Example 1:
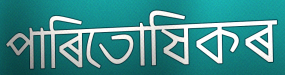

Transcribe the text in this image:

পাৰিতোষিকৰ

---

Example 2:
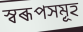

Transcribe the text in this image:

স্বৰূপসমূহ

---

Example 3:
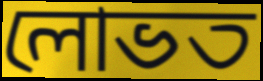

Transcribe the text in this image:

লোভত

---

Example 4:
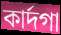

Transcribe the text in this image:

কাৰ্দগা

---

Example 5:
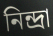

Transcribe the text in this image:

নিন্দ্ৰা